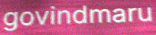
govindmaru